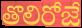
తొలిరోజే